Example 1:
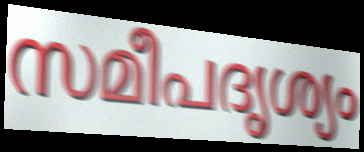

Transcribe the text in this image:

സമീപദൃശ്യം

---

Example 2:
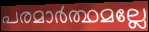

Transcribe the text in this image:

പരമാർത്ഥമല്ലേ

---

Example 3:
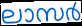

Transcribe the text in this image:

ലാസർ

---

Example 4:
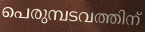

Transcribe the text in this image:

പെരുമ്പടവത്തിന്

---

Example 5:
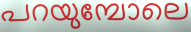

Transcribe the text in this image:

പറയുമ്പോലെ